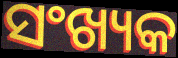
ସଂଖ୍ୟକ